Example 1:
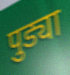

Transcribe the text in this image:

पुड्या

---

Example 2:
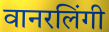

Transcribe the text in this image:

वानरलिंगी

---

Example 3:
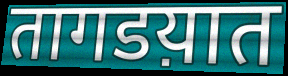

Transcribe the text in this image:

तागडय़ात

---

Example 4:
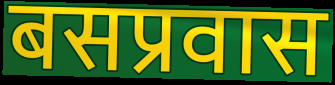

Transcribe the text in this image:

बसप्रवास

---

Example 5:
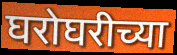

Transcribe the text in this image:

घरोघरीच्या